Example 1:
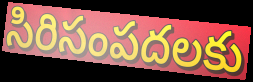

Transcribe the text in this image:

సిరిసంపదలకు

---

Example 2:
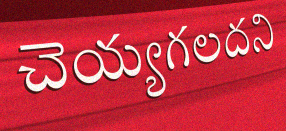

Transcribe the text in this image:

చెయ్యగలదని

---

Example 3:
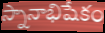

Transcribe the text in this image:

స్నానాభిషేకం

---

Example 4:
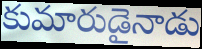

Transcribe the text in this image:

కుమారుడైనాడు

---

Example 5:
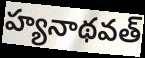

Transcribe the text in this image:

హ్యనాథవత్